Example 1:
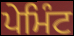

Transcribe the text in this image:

ਪੇਮਿੰਟ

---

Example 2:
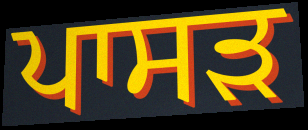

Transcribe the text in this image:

ਪਾਸੜ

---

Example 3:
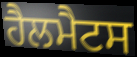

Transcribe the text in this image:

ਹੈਲਮੈਟਸ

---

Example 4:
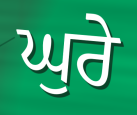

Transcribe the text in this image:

ਘੁਰੇ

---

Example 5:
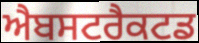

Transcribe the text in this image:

ਐਬਸਟਰੈਕਟਡ